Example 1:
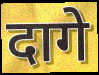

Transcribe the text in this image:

दागे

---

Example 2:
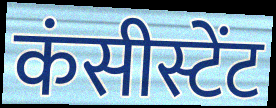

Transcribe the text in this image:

कंसीस्टेंट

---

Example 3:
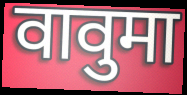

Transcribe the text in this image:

वावुमा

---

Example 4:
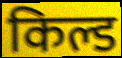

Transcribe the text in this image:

किल्ड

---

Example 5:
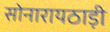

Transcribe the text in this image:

सोनारायठाड़ी